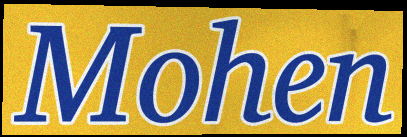
Mohen